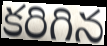
కరిగిన